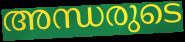
അന്ധരുടെ